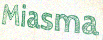
Miasma